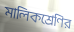
মালিকশ্রেণির